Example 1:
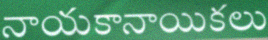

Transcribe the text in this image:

నాయకానాయికలు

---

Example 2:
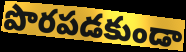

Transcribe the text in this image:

పొరపడకుండా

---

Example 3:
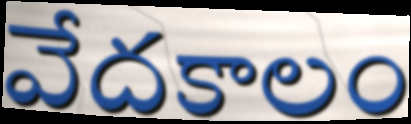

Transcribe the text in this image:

వేదకాలం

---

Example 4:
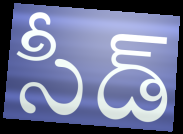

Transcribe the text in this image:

సీడ్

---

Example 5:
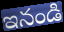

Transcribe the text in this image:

ఇనండి